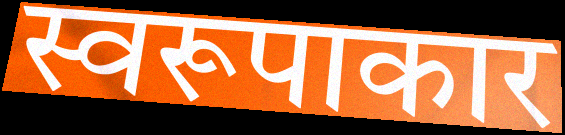
स्वरूपाकार